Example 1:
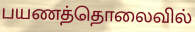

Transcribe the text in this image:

பயணத்தொலைவில்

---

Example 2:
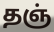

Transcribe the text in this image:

தஞ்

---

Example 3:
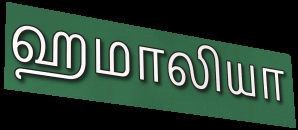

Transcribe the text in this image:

ஹமாலியா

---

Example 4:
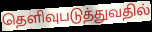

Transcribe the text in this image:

தெளிவுபடுத்துவதில்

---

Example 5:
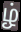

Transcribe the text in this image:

ழ்